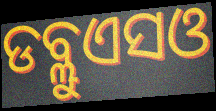
ଡବ୍ଲୁଏସଓ